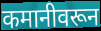
कमानीवरून